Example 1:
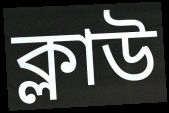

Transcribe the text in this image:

ক্লাউ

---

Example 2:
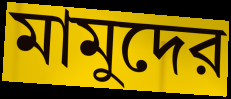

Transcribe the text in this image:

মামুদের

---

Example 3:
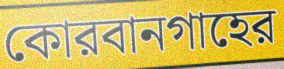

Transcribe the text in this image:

কোরবানগাহের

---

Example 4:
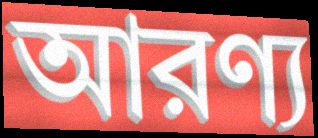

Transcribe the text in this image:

আরণ্য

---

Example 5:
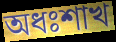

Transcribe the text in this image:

অধঃশাখ